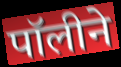
पॉलीने